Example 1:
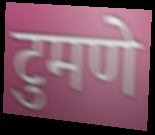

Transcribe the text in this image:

टुमणे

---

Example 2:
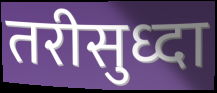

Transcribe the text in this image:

तरीसुध्दा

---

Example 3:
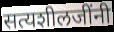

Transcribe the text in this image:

सत्यशीलजींनी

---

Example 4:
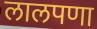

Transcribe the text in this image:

लालपणा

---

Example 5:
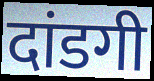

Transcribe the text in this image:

दांडगी